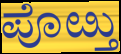
ಪೊೞ್ತು